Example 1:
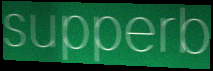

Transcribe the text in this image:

supperb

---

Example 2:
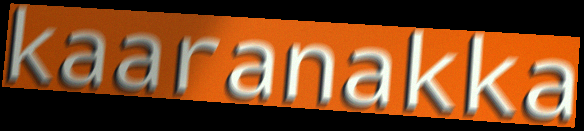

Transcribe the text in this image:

kaaranakka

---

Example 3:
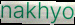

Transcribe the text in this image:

nakhyo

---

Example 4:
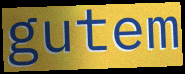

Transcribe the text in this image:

gutem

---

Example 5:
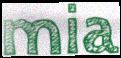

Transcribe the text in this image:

mia